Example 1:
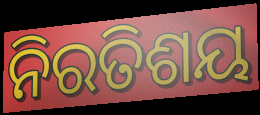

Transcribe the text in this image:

ନିରତିଶୟ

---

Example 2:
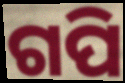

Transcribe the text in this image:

ଗପି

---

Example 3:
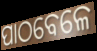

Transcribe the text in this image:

ପାଠବେଳେ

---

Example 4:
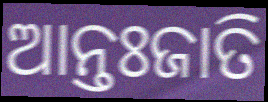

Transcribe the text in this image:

ଆନ୍ତଃଜାତି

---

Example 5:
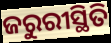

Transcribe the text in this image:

ଜରୁରୀସ୍ଥିତି